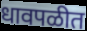
धावपळीत